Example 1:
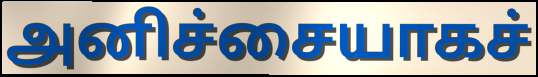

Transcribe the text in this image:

அனிச்சையாகச்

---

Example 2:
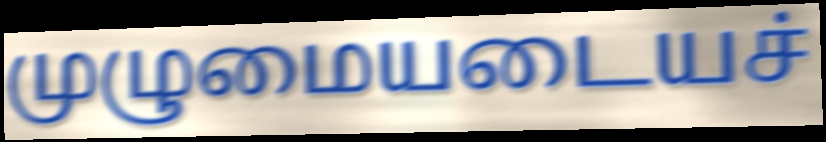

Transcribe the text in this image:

முழுமையடையச்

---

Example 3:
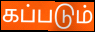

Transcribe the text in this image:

கப்படும்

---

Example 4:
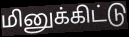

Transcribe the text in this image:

மினுக்கிட்டு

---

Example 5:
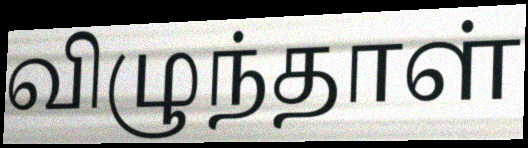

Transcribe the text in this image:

விழுந்தாள்